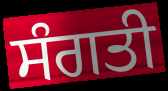
ਸੰਗਤੀ